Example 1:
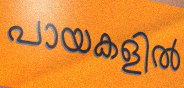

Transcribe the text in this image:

പായകളിൽ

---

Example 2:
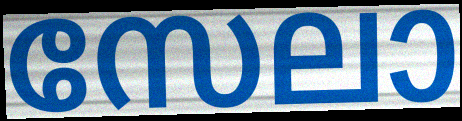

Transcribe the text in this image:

സേലാ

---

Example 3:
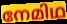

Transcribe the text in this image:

നേമിഥ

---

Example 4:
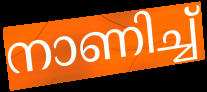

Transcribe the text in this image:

നാണിച്ച്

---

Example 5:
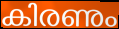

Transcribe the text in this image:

കിരണും